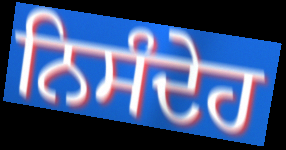
ਨਿਸੰਦੇਹ